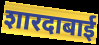
शारदाबाई